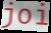
joi